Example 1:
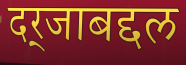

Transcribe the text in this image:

दर्जाबद्दल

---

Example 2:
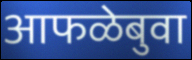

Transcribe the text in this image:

आफळेबुवा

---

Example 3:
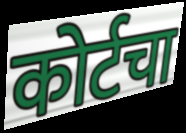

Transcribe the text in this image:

कोर्टचा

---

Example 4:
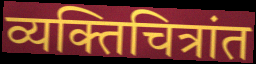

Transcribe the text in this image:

व्यक्तिचित्रांत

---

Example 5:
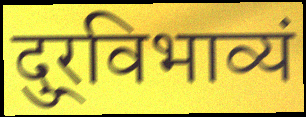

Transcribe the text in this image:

दुर्विभाव्यं